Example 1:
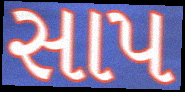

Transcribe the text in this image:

સાપ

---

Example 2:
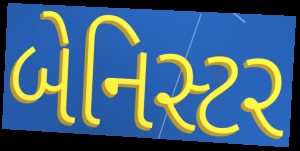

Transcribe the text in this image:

બેનિસ્ટર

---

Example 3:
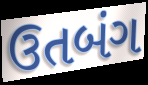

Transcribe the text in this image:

ઉતબંગ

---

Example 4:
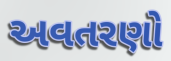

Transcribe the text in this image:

અવતરણો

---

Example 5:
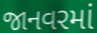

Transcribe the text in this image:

જાનવરમાં